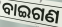
ବାଇଗଣ